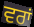
ਵਰਾਂ